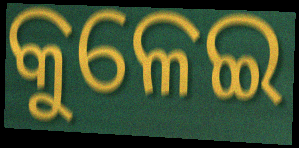
କୁଳେଇ